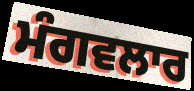
ਮੰਗਵਲਾਰ